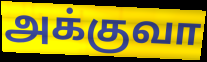
அக்குவா